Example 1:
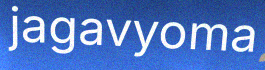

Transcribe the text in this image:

jagavyoma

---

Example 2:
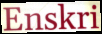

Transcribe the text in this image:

Enskri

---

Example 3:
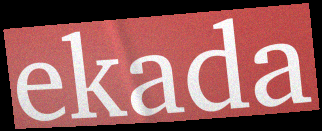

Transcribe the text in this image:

ekada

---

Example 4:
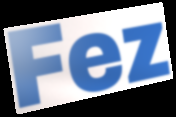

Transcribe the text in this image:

Fez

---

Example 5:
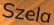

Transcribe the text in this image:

Szela